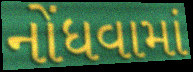
નોંધવામાં